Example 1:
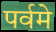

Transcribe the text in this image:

पर्वमे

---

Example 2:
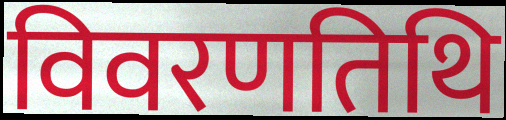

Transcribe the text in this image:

विवरणतिथि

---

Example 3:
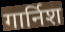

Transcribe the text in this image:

गार्निश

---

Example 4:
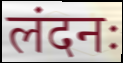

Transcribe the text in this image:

लंदनः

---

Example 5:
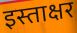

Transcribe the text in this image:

इस्ताक्षर